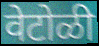
वेटोळी